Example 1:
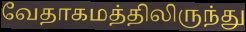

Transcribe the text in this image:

வேதாகமத்திலிருந்து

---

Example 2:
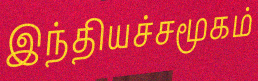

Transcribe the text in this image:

இந்தியச்சமூகம்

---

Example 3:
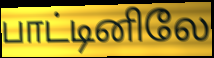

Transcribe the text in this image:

பாட்டினிலே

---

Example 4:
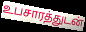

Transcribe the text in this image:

உபசாரத்துடன்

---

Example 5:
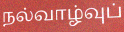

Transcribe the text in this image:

நல்வாழ்வுப்